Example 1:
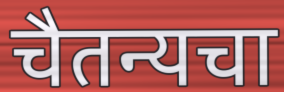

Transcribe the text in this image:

चैतन्यचा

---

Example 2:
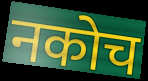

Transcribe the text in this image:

नकोच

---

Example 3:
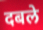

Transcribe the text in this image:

दबले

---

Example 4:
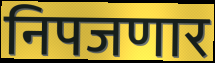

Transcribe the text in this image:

निपजणार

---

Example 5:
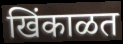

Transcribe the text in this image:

खिंकाळत